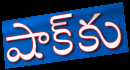
షాక్‌కు